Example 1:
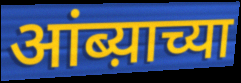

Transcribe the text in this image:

आंब्य़ाच्या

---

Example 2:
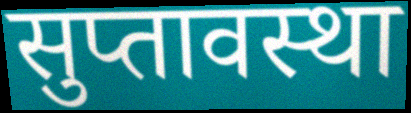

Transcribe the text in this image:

सुप्तावस्था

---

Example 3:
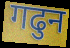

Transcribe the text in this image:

गढुन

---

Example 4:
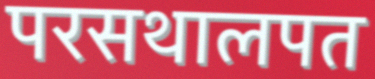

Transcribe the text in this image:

परसथालपत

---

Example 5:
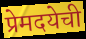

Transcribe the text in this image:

प्रेमदयेची